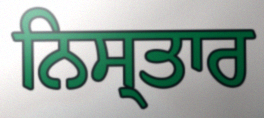
ਨਿਸ੍ਤਾਰ